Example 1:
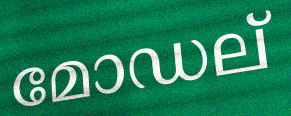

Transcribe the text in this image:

മോഡല്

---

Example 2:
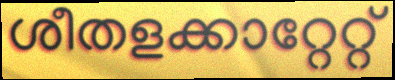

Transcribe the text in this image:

ശീതളക്കാറ്റേറ്റ്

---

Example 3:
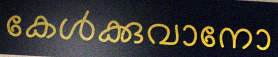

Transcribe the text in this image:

കേൾക്കുവാനോ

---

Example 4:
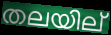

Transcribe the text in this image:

തലയില്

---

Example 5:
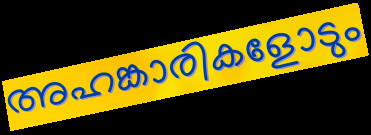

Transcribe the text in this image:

അഹങ്കാരികളോടും